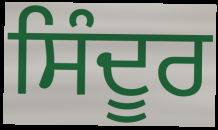
ਸਿੰਦੂਰ